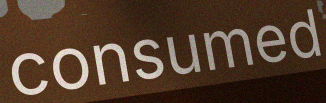
consumed